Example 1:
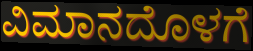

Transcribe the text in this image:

ವಿಮಾನದೊಳಗೆ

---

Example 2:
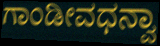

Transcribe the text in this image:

ಗಾಂಡೀವಧನ್ವಾ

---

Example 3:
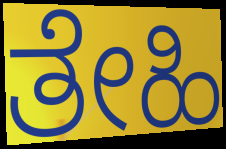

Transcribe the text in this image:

ತೇಹಿ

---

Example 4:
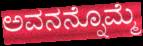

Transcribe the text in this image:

ಅವನನ್ನೊಮ್ಮೆ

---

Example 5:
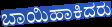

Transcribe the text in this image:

ಬಾಯಿಹಾಕಿದರು